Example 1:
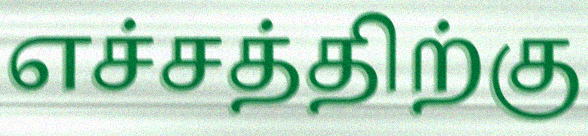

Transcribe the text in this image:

எச்சத்திற்கு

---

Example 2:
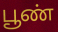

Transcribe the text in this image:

பூண்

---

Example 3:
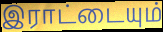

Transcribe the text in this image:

இராட்டையும்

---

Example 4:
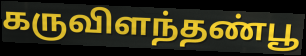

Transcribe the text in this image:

கருவிளந்தண்பூ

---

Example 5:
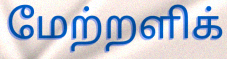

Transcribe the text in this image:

மேற்றளிக்